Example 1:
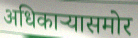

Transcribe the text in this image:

अधिकाऱ्यासमोर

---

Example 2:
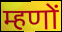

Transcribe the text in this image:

म्हणों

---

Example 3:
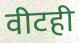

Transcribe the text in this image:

वीटही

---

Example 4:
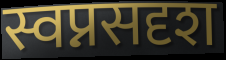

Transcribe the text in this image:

स्वप्नसदृश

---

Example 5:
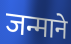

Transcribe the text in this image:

जन्माने